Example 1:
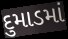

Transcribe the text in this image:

દુમાડમાં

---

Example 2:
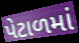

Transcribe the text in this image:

પેટાળમાં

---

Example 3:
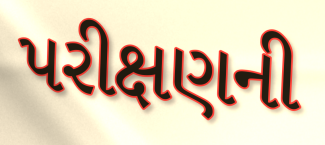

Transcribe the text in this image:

પરીક્ષણની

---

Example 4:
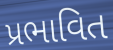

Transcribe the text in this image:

પ્રભાવિત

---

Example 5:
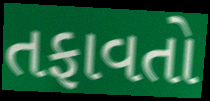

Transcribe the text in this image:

તફાવતો